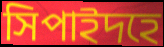
সিপাইদহে